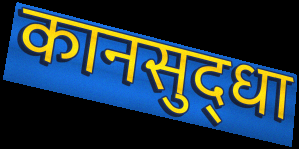
कानसुद्धा